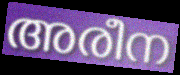
അരീന